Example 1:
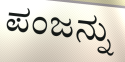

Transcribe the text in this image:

ಪಂಜನ್ನು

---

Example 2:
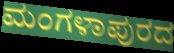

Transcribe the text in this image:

ಮಂಗಳಾಪುರದ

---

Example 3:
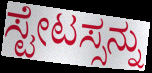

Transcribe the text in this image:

ಸ್ಟೇಟಸ್ಸನ್ನು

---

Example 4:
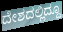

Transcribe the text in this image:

ದೇಶದಲ್ಲಿದ್ದೂ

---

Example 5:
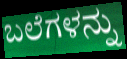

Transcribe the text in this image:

ಬಲೆಗಳನ್ನು